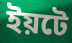
ইয়টে